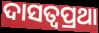
ଦାସତ୍ୱପ୍ରଥା